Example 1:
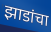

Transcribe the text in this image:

झाडांचा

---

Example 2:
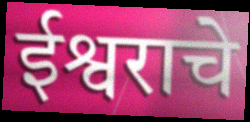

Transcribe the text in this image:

ईश्वराचे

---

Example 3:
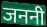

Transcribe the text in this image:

जननी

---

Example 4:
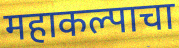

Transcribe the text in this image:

महाकल्पाचा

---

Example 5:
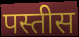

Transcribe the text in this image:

पस्तीस